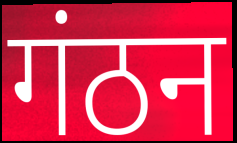
गंठन